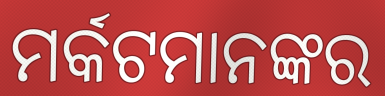
ମର୍କଟମାନଙ୍କର